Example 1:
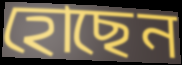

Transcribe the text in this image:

হোছেন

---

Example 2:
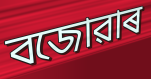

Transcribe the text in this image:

বজোৱাৰ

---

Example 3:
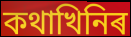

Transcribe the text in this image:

কথাখিনিৰ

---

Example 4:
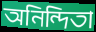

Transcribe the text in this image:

অনিন্দিতা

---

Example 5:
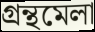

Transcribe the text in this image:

গ্ৰন্থমেলা